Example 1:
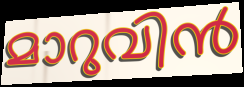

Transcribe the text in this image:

മാറുവിൻ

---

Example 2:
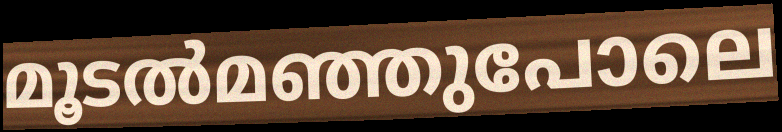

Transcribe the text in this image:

മൂടൽമഞ്ഞുപോലെ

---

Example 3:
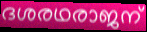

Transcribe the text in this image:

ദശരഥരാജന്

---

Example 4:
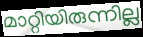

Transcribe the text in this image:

മാറ്റിയിരുന്നില്ല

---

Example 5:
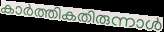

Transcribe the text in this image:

കാർത്തികതിരുന്നാൾ